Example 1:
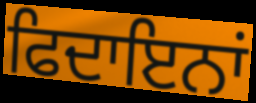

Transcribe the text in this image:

ਫਿਦਾਇਨਾਂ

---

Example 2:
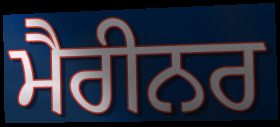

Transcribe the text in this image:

ਮੈਰੀਨਰ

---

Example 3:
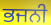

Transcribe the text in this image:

ਭਜਨੀ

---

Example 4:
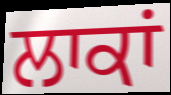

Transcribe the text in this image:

ਲਾਕਾਂ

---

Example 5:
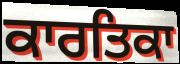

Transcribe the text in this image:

ਕਾਰਤਿਕਾ